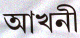
আখনী